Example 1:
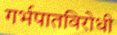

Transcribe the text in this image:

गर्भपातविरोधी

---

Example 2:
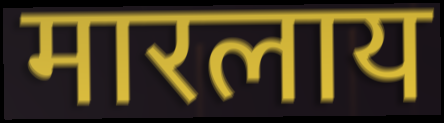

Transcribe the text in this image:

मारलाय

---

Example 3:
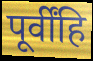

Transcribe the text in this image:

पूर्वींहि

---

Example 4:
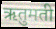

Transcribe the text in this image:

ऋतुमती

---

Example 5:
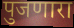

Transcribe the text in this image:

पुजणारा